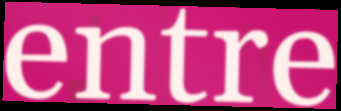
entre